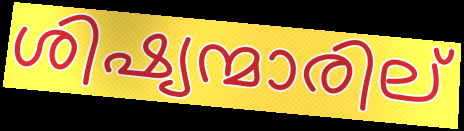
ശിഷ്യന്മാരില്